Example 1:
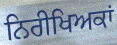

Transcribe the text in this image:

ਨਿਰੀਖਿਅਕਾਂ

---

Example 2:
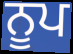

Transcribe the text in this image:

ਨੂਪ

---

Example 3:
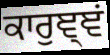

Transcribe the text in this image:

ਕਾਰੁਞ੍ਞਂ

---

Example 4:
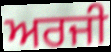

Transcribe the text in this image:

ਅਰਜੀ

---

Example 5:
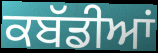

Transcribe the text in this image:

ਕਬੱਡੀਆਂ